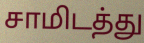
சாமிடத்து